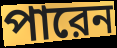
পারেন